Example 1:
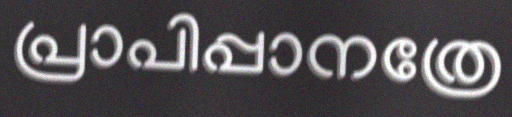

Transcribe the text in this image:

പ്രാപിപ്പാനത്രേ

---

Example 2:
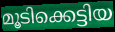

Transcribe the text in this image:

മൂടിക്കെട്ടിയ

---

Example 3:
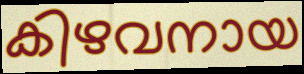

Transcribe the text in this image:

കിഴവനായ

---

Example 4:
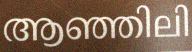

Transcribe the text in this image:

ആഞ്ഞിലി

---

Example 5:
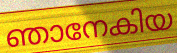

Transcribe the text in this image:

ഞാനേകിയ